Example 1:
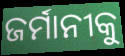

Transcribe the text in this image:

ଜର୍ମାନୀକୁ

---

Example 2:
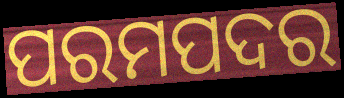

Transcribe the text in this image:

ପରମପଦର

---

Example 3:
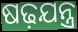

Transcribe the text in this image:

ଷଢ଼ଯନ୍ତ୍ର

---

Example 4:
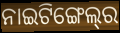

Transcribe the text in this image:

ନାଇଟିଙ୍ଗେଲ୍‌ର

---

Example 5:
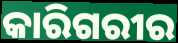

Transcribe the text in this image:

କାରିଗରୀର